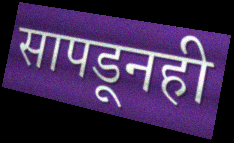
सापडूनही